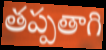
తప్పతాగి